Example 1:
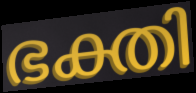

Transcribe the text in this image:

ഭക്തി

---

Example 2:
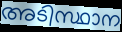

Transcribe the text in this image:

അടിസ്ഥാന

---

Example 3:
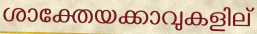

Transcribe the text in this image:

ശാക്തേയക്കാവുകളില്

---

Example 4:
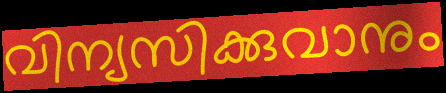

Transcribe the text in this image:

വിന്യസിക്കുവാനും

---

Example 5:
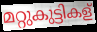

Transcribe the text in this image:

മറ്റുകുട്ടികള്